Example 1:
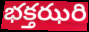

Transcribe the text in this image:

భక్తఝరి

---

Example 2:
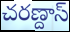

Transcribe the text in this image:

చరణ్దాస్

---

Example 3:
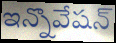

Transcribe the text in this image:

ఇన్నొవేషన్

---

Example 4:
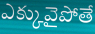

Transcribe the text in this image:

ఎక్కువైపోతే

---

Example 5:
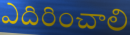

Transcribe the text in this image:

ఎదిరించాలి